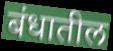
बंधातील